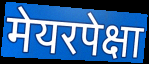
मेयरपेक्षा